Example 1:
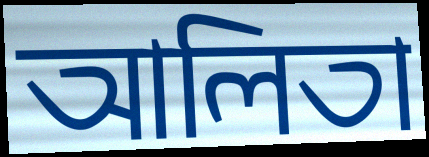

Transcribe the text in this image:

আলিতা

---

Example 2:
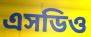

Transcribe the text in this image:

এসডিও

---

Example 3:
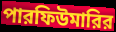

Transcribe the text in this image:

পারফিউমারির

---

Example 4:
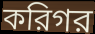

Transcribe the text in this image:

করিগর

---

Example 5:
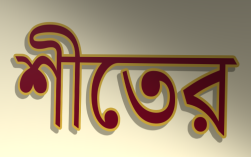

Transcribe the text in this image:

শীতের